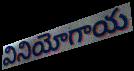
వినియోగాయ